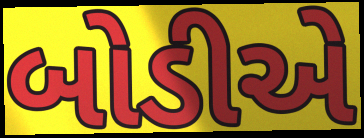
બોડીએ